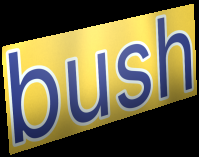
bush